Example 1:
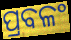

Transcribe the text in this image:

ପ୍ରବଳଂ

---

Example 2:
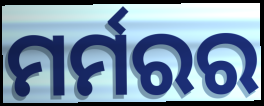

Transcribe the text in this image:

ମର୍ମରର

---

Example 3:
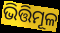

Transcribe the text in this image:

ଭିତ୍ତିମୂଳ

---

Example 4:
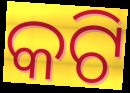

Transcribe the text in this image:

କଟି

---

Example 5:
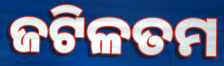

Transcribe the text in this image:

ଜଟିଳତମ